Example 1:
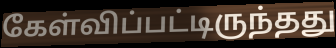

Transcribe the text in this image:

கேள்விப்பட்டிருந்தது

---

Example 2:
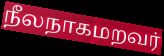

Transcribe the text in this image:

நீலநாகமறவர்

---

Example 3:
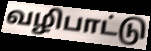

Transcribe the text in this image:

வழிபாட்டு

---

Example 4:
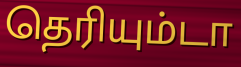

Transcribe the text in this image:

தெரியும்டா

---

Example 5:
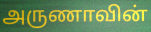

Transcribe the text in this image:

அருணாவின்